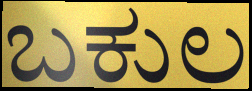
ಬಕುಲ